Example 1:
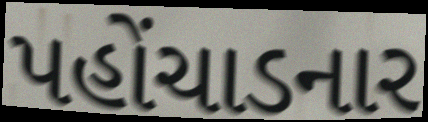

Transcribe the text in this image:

પહોંચાડનાર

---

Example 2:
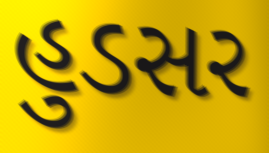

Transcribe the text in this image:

હુડસર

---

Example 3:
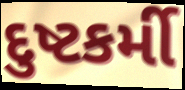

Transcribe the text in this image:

દુષ્ટકર્મી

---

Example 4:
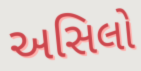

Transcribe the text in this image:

અસિલો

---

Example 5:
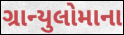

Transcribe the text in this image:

ગ્રાન્યુલોમાના